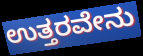
ಉತ್ತರವೇನು